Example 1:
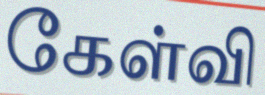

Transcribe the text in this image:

கேள்வி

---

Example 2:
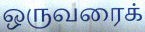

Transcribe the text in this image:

ஒருவரைக்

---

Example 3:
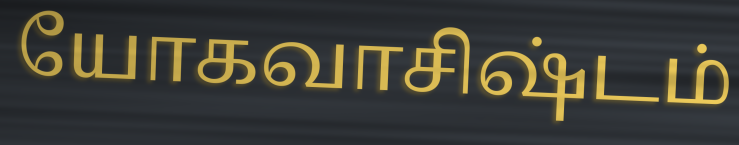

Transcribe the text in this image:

யோகவாசிஷ்டம்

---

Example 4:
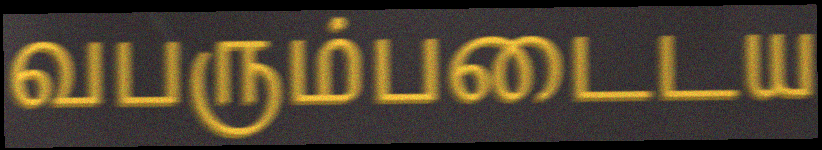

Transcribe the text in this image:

வபரும்படைடய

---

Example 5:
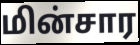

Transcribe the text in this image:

மின்சார